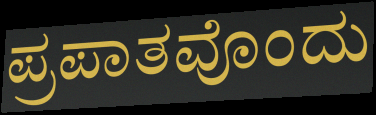
ಪ್ರಪಾತವೊಂದು